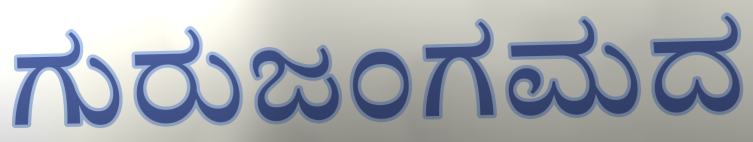
ಗುರುಜಂಗಮದ